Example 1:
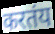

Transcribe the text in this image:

करतंय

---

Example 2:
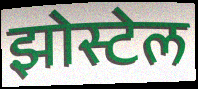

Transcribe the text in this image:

झोस्टेल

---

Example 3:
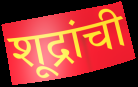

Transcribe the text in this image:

शूद्रांची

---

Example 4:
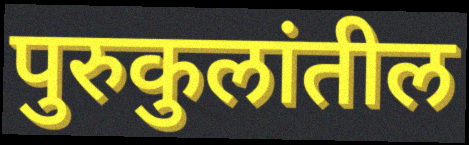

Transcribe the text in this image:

पुरुकुलांतील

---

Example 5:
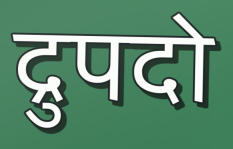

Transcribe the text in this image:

द्रुपदो